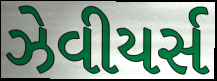
ઝેવીયર્સ